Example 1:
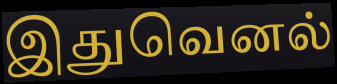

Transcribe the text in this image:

இதுவெனல்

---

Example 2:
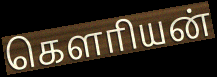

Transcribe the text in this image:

கௌரியன்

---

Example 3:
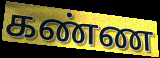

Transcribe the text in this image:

கண்ண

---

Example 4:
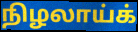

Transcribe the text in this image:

நிழலாய்க்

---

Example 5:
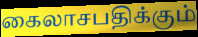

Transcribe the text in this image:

கைலாசபதிக்கும்